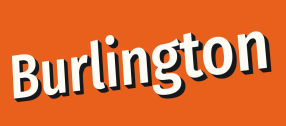
Burlington